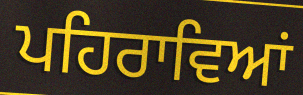
ਪਹਿਰਾਵਿਆਂ